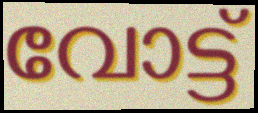
വോട്ട്